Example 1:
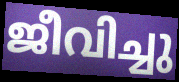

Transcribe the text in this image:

ജീവിച്ചു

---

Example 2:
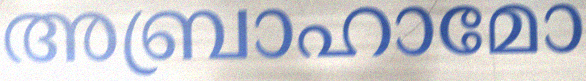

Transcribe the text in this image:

അബ്രാഹാമോ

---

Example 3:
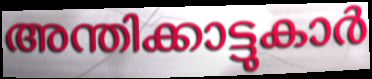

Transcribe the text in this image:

അന്തിക്കാട്ടുകാർ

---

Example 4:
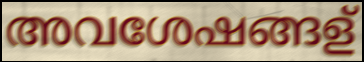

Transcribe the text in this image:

അവശേഷങ്ങള്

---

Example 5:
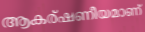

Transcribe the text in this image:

ആകര്ഷണീയമാണ്